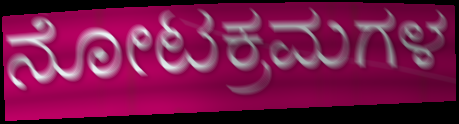
ನೋಟಕ್ರಮಗಳ